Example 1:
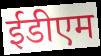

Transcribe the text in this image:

ईडीएम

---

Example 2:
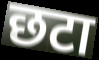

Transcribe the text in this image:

छटा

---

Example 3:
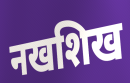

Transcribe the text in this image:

नखशिख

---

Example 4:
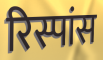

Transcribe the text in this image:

रिस्पांस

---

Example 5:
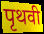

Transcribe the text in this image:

पृथवी